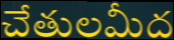
చేతులమీద